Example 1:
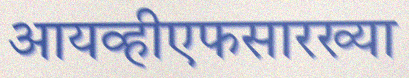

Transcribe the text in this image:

आयव्हीएफसारख्या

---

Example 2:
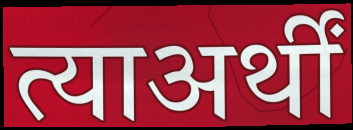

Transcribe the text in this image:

त्याअर्थीं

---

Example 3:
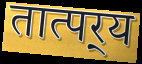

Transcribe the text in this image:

तात्पर्य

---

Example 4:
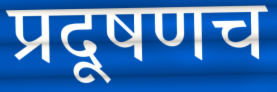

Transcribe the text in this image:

प्रदूषणच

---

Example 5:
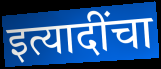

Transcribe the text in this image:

इत्यादींचा